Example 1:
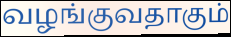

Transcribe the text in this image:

வழங்குவதாகும்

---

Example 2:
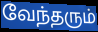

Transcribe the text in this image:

வேந்தரும்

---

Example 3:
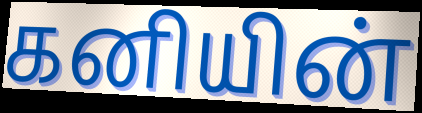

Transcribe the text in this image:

கனியின்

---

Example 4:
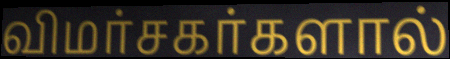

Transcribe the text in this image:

விமர்சகர்களால்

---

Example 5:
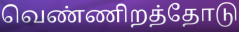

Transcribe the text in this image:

வெண்ணிறத்தோடு